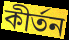
কীর্তন